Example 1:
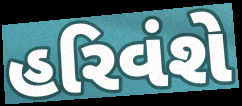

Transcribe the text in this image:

હરિવંશે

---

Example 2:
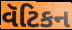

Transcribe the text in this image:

વૅટિકન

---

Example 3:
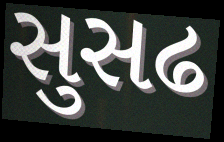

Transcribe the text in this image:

સુસઢ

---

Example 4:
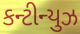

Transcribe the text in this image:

કન્ટીન્યુઝ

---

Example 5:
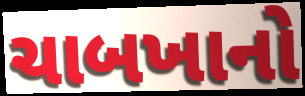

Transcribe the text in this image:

ચાબખાનો